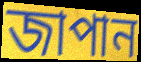
জাপান